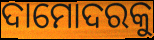
ଦାମୋଦରକୁ